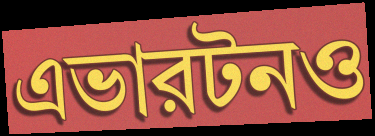
এভারটনও